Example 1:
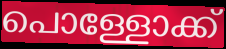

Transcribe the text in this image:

പൊള്ളോക്ക്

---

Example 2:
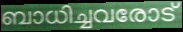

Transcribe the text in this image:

ബാധിച്ചവരോട്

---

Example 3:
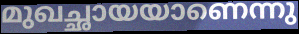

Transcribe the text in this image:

മുഖച്ഛായയാണെന്നു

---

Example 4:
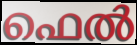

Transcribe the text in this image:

ഫെൽ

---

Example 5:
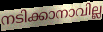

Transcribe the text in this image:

നടിക്കാനാവില്ല